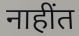
नाहींत